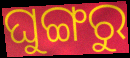
ଘୁଙ୍ଗରୁ